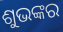
ଶୁଭଙ୍କର